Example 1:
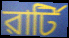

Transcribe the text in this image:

ৱাৰ্টি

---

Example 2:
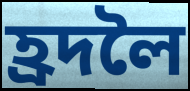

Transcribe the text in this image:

হ্ৰদলৈ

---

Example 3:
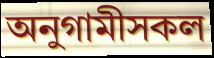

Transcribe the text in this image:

অনুগামীসকল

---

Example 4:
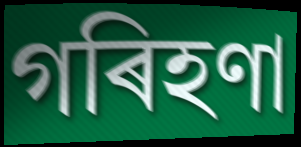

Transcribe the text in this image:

গৰিহণা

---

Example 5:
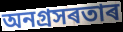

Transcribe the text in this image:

অনগ্ৰসৰতাৰ